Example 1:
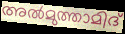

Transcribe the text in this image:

അൽമുത്താമിദ്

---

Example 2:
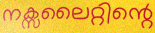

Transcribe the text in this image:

നക്സലൈറ്റിന്റെ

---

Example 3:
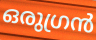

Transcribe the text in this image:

ഒരുഗ്രൻ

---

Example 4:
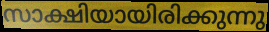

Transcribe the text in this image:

സാക്ഷിയായിരിക്കുന്നു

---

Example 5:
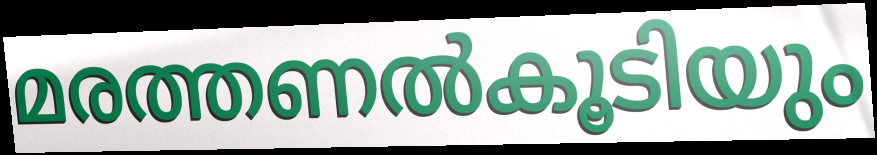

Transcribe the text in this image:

മരത്തണൽകൂടിയും